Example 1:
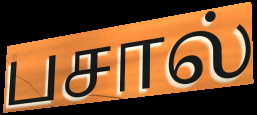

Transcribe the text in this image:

பசால்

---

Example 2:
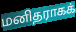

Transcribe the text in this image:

மனிதராகக்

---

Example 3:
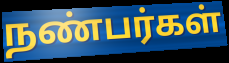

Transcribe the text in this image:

நண்பர்கள்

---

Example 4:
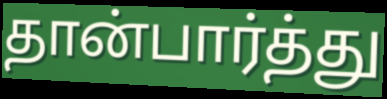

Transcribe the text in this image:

தான்பார்த்து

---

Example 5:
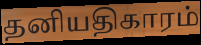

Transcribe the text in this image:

தனியதிகாரம்